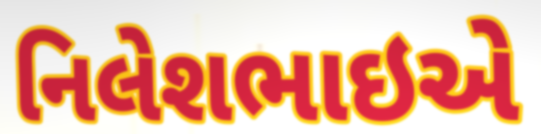
નિલેશભાઇએ